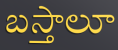
బస్తాలూ